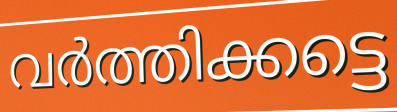
വർത്തിക്കട്ടെ